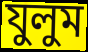
যুলুম